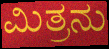
ಮಿತ್ರನು